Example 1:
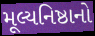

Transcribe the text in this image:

મૂલ્યનિષ્ઠાનો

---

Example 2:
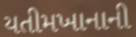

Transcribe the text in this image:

યતીમખાનાની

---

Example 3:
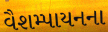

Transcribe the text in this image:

વૈશમ્પાયનના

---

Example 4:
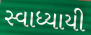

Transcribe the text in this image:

સ્વાધ્યાયી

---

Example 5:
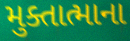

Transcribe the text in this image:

મુક્તાત્માના